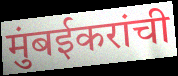
मुंबईकरांची